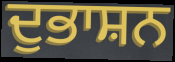
ਦੁਭਾਸ਼ਨ